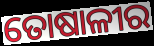
ତୋଷାଳୀର